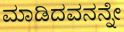
ಮಾಡಿದವನನ್ನೇ